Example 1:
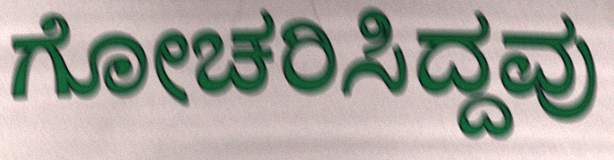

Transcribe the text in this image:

ಗೋಚರಿಸಿದ್ದವು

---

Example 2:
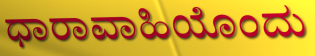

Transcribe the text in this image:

ಧಾರಾವಾಹಿಯೊಂದು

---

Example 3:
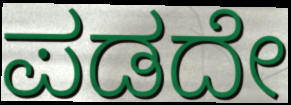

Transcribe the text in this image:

ಪಡದೇ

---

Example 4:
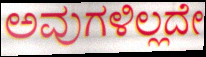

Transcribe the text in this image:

ಅವುಗಳಿಲ್ಲದೇ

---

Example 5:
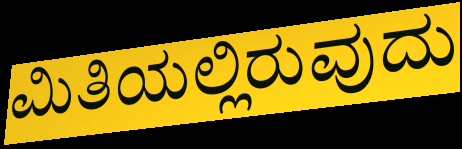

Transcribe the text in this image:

ಮಿತಿಯಲ್ಲಿರುವುದು